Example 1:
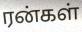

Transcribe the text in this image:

ரன்கள்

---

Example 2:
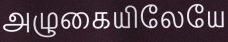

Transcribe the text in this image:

அழுகையிலேயே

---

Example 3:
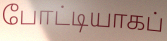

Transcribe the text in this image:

போட்டியாகப்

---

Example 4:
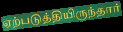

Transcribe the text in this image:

ஏற்படுத்தியிருந்தார்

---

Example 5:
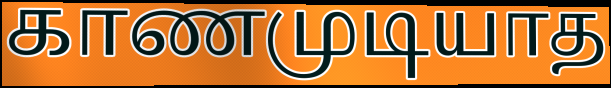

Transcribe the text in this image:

காணமுடியாத